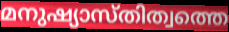
മനുഷ്യാസ്തിത്വത്തെ